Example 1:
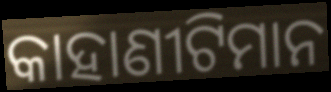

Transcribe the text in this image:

କାହାଣୀଟିମାନ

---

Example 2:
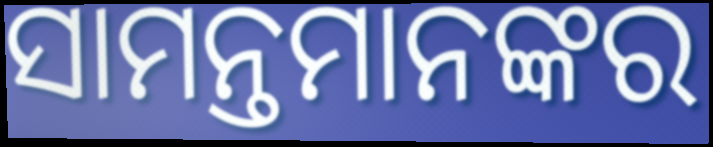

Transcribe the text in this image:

ସାମନ୍ତମାନଙ୍କର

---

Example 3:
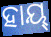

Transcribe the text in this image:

ହାୟ୍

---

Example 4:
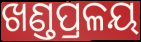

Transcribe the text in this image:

ଖଣ୍ଡପ୍ରଳୟ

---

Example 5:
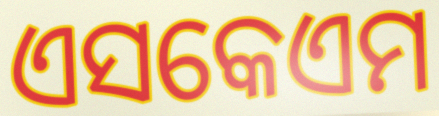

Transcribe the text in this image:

ଏସକେଏମ